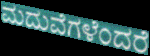
ಮದುವೆಗಳೆಂದರೆ